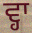
ਵ੍ਹਾ